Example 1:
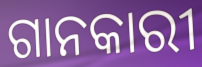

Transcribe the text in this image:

ଗାନକାରୀ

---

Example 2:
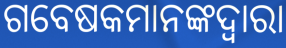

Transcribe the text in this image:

ଗବେଷକମାନଙ୍କଦ୍ୱାରା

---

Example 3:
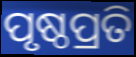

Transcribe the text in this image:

ପୃଷ୍ଠପ୍ରତି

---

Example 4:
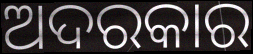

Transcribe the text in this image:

ଅଦରକାର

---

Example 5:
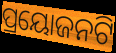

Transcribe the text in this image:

ପ୍ରୟୋଜନଟି